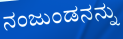
ನಂಜುಂಡನನ್ನು